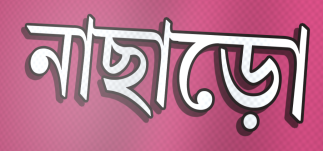
নাছাড়ো